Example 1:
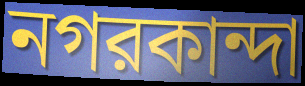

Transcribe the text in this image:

নগরকান্দা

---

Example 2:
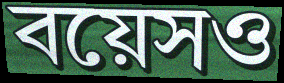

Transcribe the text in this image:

বয়েসও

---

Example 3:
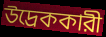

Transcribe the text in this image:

উদ্রেককারী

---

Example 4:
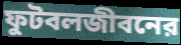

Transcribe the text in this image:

ফুটবলজীবনের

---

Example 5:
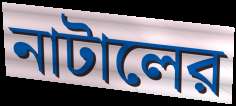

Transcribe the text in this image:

নাটালের